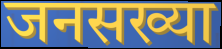
जनसख्या